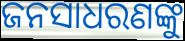
ଜନସାଧରଣଙ୍କୁ